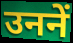
उननें